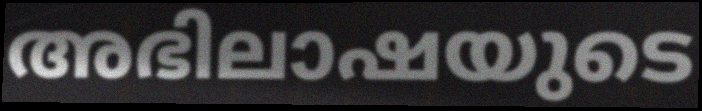
അഭിലാഷയുടെ